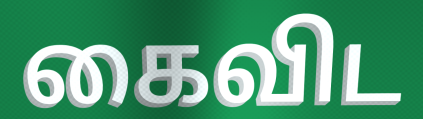
கைவிட